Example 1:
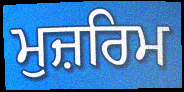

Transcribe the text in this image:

ਮੁਜ਼ਰਿਮ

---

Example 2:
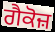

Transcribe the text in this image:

ਗੈਕੋਜ਼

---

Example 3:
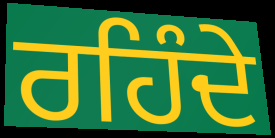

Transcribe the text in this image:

ਰਹਿੰਦੇ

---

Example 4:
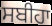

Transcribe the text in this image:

ਸਬੀਹਾ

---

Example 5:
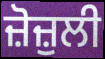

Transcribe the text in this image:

ਜ਼ੋਜ਼ੁਲੀ